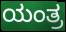
ಯಂತ್ರ